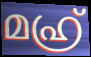
മഹ്ര്